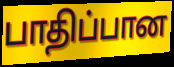
பாதிப்பான